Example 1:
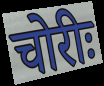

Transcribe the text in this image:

चोरीः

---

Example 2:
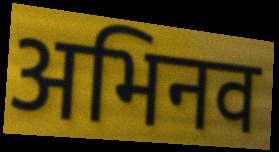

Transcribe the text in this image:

अभिनव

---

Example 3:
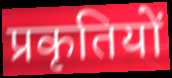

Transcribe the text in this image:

प्रकृतियों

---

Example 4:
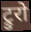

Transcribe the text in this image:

ट्रुरो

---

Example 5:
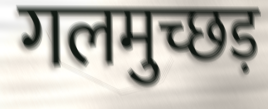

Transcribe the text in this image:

गलमुच्छड़